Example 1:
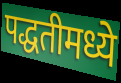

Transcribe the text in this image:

पद्धतीमध्ये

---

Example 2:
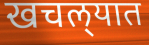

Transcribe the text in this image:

खचल्यात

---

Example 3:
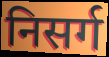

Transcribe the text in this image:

निसर्ग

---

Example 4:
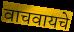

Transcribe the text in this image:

वाचवायचे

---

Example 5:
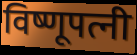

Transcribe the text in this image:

विष्णूपत्नी